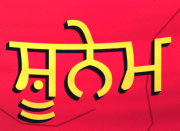
ਸ਼ੂਨੇਮ